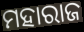
ମହାରାଜ